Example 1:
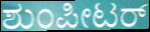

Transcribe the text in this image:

ಶುಂಪೀಟರ್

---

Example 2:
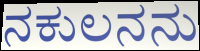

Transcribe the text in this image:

ನಕುಲನನು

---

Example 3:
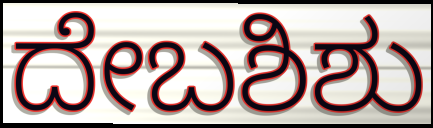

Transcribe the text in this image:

ದೇಬಶಿಶು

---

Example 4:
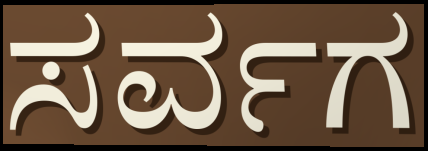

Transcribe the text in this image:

ಸರ್ವಗ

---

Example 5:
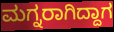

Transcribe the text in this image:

ಮಗ್ನರಾಗಿದ್ದಾಗ